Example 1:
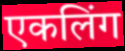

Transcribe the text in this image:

एकलिंग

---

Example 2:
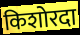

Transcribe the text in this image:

किशोरदा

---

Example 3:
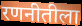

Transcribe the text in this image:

रणनीतीला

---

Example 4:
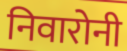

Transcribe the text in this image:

निवारोनी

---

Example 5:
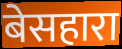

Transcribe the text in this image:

बेसहारा